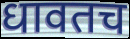
धावतच